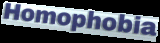
Homophobia